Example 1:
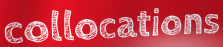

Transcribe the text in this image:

collocations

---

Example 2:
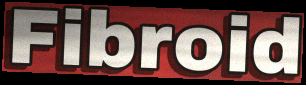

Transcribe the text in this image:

Fibroid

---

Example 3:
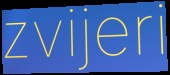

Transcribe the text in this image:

zvijeri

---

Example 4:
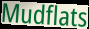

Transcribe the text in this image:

Mudflats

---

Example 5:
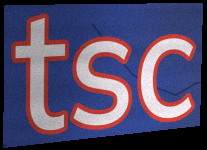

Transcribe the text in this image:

tsc